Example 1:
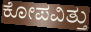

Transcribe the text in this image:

ಕೋಪವಿತ್ತು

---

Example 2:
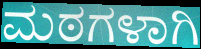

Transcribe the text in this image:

ಮಠಗಳಾಗಿ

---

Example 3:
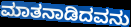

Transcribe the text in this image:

ಮಾತನಾಡಿದವನು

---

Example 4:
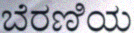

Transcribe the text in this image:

ಬೆರಣಿಯ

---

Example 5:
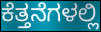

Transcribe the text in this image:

ಕೆತ್ತನೆಗಳಲ್ಲಿ